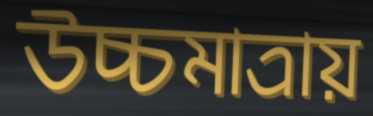
উচ্চমাত্রায়